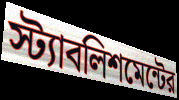
স্ট্যাবলিশমেন্টের